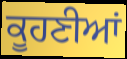
ਕੂਹਣੀਆਂ